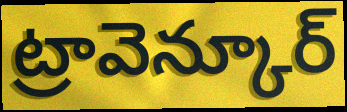
ట్రావెన్కూర్